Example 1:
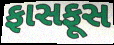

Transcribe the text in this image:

ફાસફૂસ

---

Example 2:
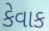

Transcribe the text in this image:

કેવાક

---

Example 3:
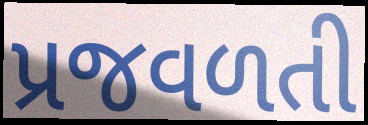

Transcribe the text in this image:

પ્રજવળતી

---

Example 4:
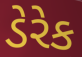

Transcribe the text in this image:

ડેરેક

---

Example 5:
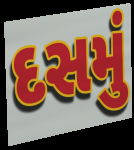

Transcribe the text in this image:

દસમું